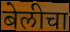
बेलीचा